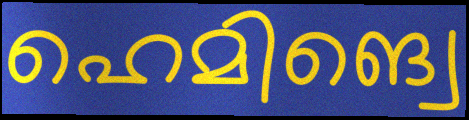
ഹെമിങ്വെ